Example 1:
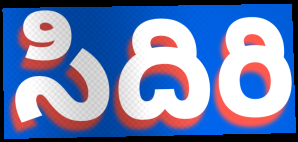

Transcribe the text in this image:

సిదిరి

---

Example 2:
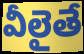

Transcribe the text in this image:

వీలైతే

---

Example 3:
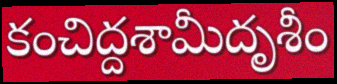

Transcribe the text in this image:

కంచిద్దశామీదృశీం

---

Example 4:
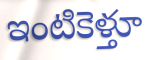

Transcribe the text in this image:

ఇంటికెళ్తూ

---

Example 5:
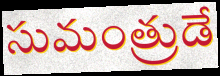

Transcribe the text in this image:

సుమంత్రుడే